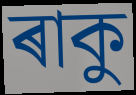
ৰাকু